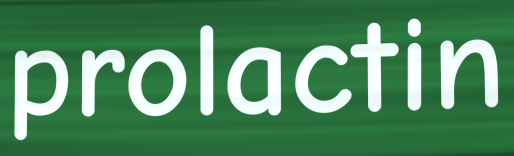
prolactin